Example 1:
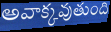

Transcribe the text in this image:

అవాక్కవుతుంది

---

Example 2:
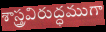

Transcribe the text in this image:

శాస్త్రవిరుద్ధముగా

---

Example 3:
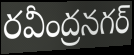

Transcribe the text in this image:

రవీంద్రనగర్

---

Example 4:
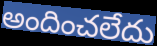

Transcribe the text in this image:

అందించలేదు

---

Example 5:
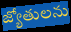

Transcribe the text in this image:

జ్యోతులను